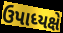
ઉપાધ્યક્ષે